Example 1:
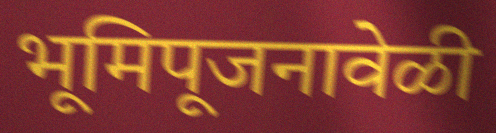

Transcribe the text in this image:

भूमिपूजनावेळी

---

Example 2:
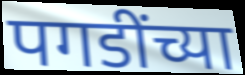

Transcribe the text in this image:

पगडींच्या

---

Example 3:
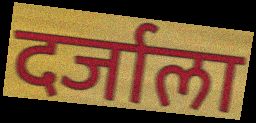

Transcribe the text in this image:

दर्जाला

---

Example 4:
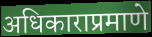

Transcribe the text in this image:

अधिकाराप्रमाणे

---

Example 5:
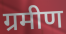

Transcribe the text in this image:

ग्रमीण